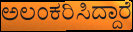
ಅಲಂಕರಿಸಿದ್ದಾರೆ